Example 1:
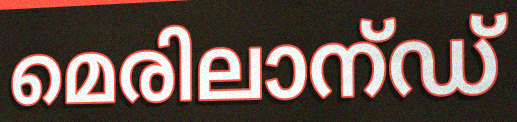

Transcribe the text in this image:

മെരിലാന്ഡ്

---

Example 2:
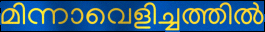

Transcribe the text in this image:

മിന്നാവെളിച്ചത്തിൽ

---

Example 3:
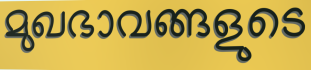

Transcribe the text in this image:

മുഖഭാവങ്ങളുടെ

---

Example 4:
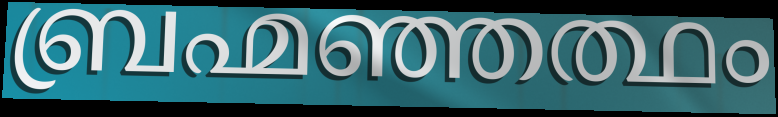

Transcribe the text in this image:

ബ്രഹ്മഞ്ഞത്ഥം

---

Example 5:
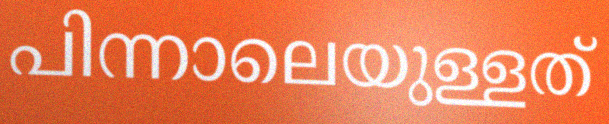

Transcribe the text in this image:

പിന്നാലെയുള്ളത്